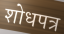
शोधपत्र